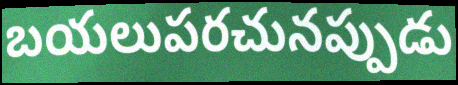
బయలుపరచునప్పుడు